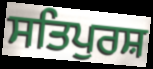
ਸਤਿਪੁਰਸ਼